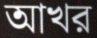
আখর